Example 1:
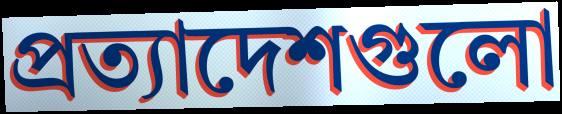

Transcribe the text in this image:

প্রত্যাদেশগুলো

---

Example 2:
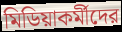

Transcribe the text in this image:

মিডিয়াকর্মীদের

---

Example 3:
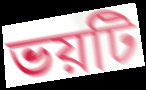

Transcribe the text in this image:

ভয়টি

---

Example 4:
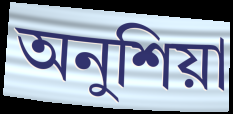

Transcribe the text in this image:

অনুশিয়া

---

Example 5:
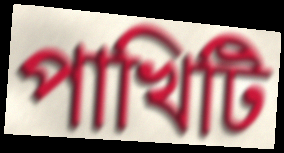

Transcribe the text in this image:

পাখিটি